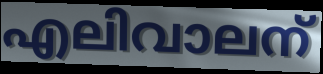
എലിവാലന്